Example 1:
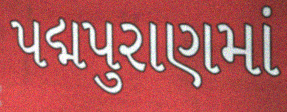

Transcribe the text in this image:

પદ્મપુરાણમાં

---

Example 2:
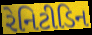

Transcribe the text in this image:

રેનિટીડિન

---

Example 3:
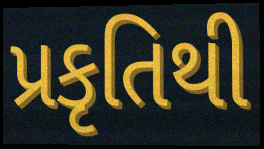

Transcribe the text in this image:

પ્રકૃતિથી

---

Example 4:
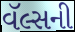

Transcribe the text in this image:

વૅલ્સની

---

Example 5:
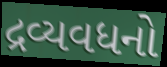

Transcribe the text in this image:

દ્રવ્યવધનો